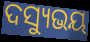
ଦସ୍ୟୁଭୟ